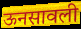
ऊनसावली